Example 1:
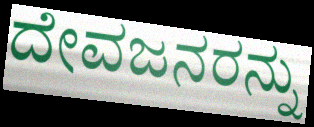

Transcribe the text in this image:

ದೇವಜನರನ್ನು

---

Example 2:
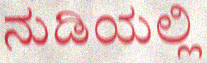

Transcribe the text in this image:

ನುಡಿಯಲ್ಲಿ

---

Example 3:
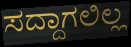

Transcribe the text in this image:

ಸದ್ದಾಗಲಿಲ್ಲ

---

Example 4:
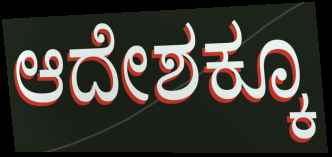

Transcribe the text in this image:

ಆದೇಶಕ್ಕೂ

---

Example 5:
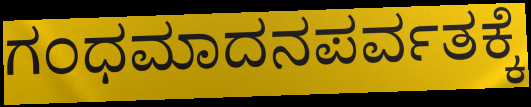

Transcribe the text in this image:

ಗಂಧಮಾದನಪರ್ವತಕ್ಕೆ